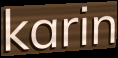
karin